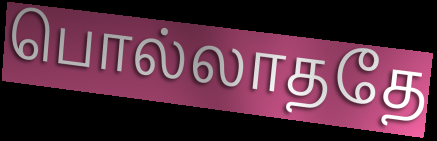
பொல்லாததே